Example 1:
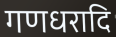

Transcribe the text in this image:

गणधरादि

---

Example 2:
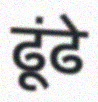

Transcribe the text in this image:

ढूंढे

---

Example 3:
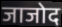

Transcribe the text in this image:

जाजोद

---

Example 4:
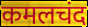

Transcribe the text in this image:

कमलचंद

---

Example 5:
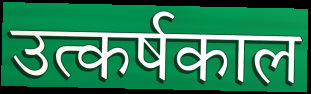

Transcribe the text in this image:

उत्कर्षकाल